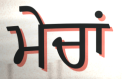
ਮੇਚਾਂ